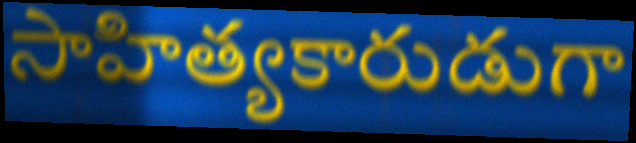
సాహిత్యకారుడుగా